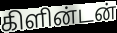
கிளின்டன்